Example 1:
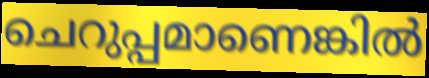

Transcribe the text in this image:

ചെറുപ്പമാണെങ്കിൽ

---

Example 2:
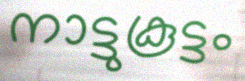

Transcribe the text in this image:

നാട്ടുകൂട്ടം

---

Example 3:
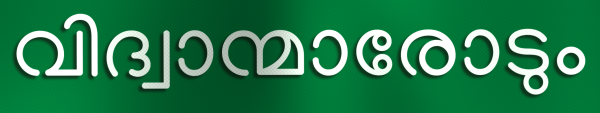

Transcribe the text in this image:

വിദ്വാന്മാരോടും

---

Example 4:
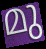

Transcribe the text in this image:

മു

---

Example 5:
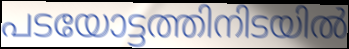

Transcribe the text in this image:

പടയോട്ടത്തിനിടയിൽ